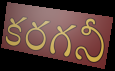
కరగనీ